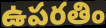
ఉపరతిం